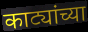
काट्यांच्या